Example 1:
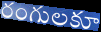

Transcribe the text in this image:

రంగులకూ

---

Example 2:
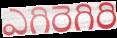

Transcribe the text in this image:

ఎగిరెగిరి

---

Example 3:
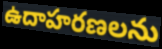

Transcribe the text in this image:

ఉదాహరణలను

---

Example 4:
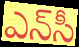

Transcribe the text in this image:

ఎన్‌సీ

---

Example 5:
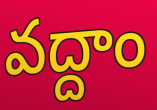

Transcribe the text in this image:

వద్దాం